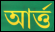
আৰ্ত্ত